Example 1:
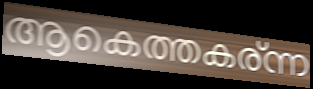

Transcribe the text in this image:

ആകെത്തകര്ന്ന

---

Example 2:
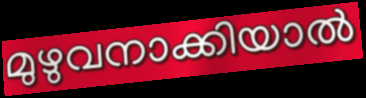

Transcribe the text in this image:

മുഴുവനാക്കിയാൽ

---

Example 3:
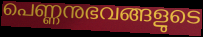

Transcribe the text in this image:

പെണ്ണനുഭവങ്ങളുടെ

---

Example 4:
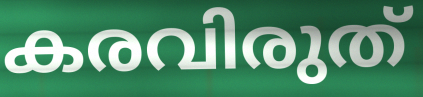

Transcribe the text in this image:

കരവിരുത്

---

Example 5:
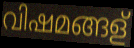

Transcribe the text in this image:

വിഷമങ്ങള്